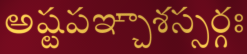
అష్టపఞ్చాశస్సర్గః